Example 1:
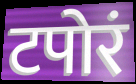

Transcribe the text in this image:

टपोरं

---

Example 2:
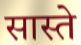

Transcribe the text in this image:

सास्ते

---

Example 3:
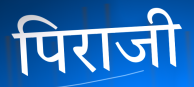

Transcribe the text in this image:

पिराजी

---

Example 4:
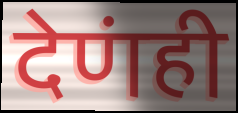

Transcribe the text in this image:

देणंही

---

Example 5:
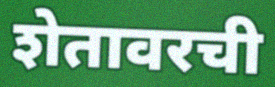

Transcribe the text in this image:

शेतावरची